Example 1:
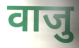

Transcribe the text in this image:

वाजु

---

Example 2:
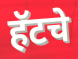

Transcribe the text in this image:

हॅटचे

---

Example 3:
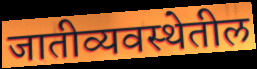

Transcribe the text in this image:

जातीव्यवस्थेतील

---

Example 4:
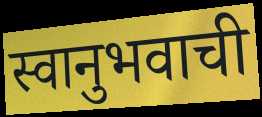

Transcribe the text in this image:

स्वानुभवाची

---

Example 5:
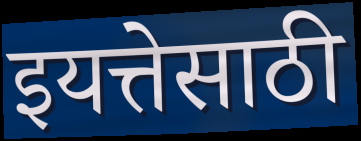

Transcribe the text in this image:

इयत्तेसाठी